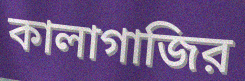
কালাগাজির